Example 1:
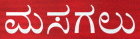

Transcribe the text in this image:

ಮಸಗಲು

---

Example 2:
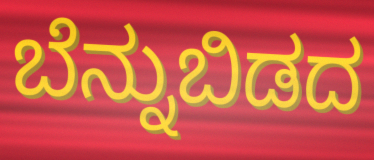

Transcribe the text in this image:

ಬೆನ್ನುಬಿಡದ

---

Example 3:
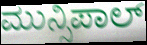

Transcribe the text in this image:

ಮುನ್ಸಿಪಾಲ್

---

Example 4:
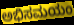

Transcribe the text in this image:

ಅಭಿಸಮಯಂ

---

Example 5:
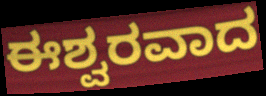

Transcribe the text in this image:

ಈಶ್ವರವಾದ